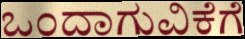
ಒಂದಾಗುವಿಕೆಗೆ